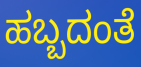
ಹಬ್ಬದಂತೆ